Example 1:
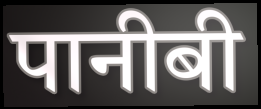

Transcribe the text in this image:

पानीबी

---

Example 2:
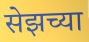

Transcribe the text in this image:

सेझच्या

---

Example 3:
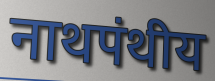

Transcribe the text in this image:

नाथपंथीय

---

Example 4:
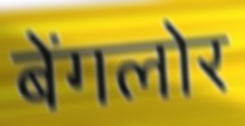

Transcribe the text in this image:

बेंगलोर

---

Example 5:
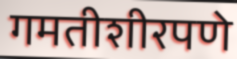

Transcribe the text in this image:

गमतीशीरपणे